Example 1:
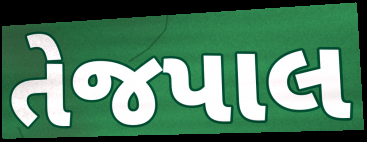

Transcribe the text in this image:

તેજપાલ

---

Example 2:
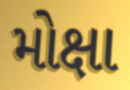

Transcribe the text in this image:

મોક્ષા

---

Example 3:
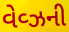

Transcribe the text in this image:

વેવ્ઝની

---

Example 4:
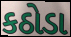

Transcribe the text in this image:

કઠોડા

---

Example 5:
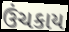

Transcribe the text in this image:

ઉંચકાય